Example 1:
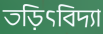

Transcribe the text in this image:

তড়িৎবিদ্যা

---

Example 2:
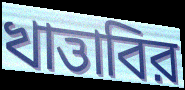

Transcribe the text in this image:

খাত্তাবির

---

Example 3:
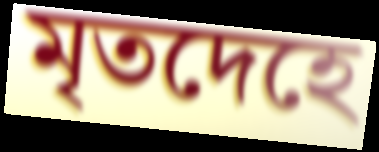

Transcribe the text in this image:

মৃতদেহে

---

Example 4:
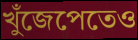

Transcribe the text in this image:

খুঁজেপেতেও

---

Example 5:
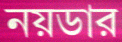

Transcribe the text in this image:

নয়ডার